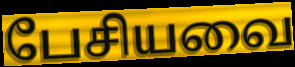
பேசியவை